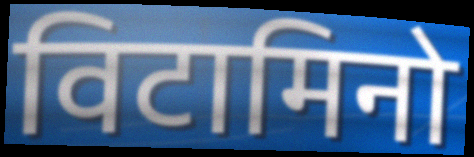
विटामिनो